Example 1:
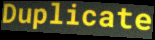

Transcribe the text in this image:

Duplicate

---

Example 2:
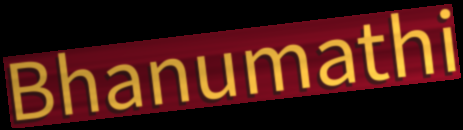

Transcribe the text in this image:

Bhanumathi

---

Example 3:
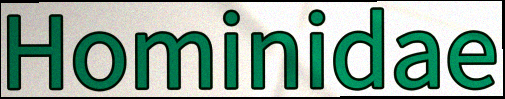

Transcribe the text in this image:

Hominidae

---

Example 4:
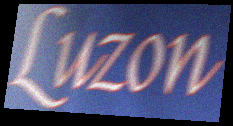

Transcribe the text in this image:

Luzon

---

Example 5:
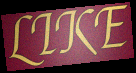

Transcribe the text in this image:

LIKE